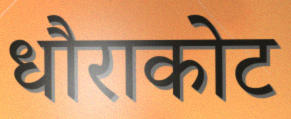
धौराकोट